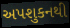
અપશુકનથી